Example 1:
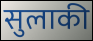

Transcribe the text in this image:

सुलाकी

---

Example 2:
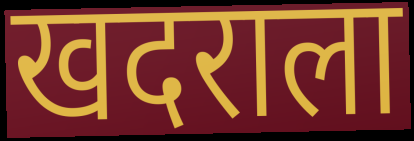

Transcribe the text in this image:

खदराला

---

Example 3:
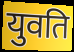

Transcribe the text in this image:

युवति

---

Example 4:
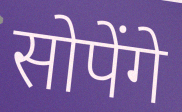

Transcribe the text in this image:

सोपेंगे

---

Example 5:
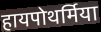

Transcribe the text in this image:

हायपोथर्मिया